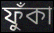
ফুঁকা